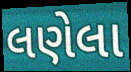
લણેલા